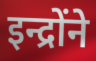
इन्द्रोंने